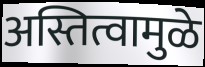
अस्तित्वामुळे